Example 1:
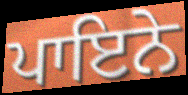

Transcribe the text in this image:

ਪਾਇਨੇ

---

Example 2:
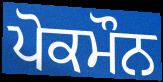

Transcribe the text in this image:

ਪੋਕਮੌਨ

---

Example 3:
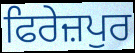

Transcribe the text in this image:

ਫਿਰੇਜ਼ਪੁਰ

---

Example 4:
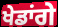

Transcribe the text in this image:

ਖੇਡਾਂਗੇ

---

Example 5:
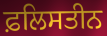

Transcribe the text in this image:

ਫ਼ਲਿਸਤੀਨ